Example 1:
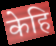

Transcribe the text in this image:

केहि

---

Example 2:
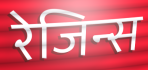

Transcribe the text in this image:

रेजिन्स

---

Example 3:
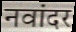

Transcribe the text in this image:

नवांदर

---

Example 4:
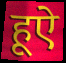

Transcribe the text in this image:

हूऐ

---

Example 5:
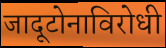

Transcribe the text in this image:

जादूटोनाविरोधी